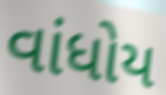
વાંધોય